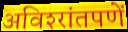
अविश्रांतपणें